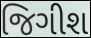
જિગીશ